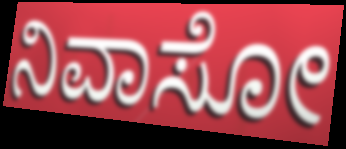
ನಿವಾಸೋ